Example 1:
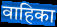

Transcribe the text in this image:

वाहिका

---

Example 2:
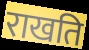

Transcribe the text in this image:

राखति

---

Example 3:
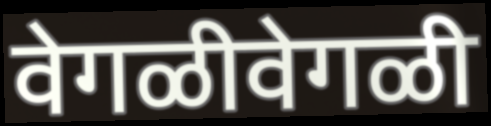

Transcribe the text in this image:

वेगळीवेगळी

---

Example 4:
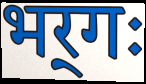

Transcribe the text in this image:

भर्गः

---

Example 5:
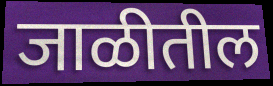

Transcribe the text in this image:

जाळीतील